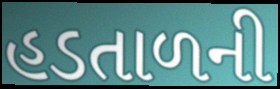
હડતાળની